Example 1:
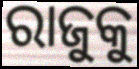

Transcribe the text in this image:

ରାଜୁକୁ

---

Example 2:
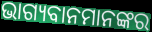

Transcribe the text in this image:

ଭାଗ୍ୟବାନମାନଙ୍କର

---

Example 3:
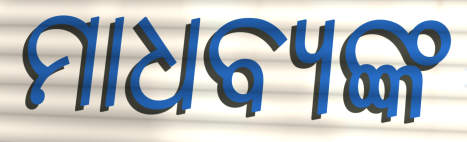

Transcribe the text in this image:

ମାଧବ୍ୟଙ୍କ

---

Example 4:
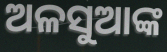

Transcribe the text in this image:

ଅଳସୁଆଙ୍କ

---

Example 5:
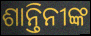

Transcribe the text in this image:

ଶାନ୍ତିନୀଙ୍କ